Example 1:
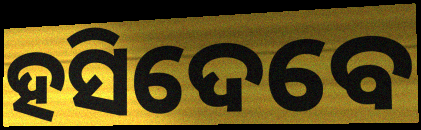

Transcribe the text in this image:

ହସିଦେବେ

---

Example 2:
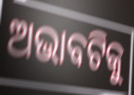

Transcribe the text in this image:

ଅଭାବଟିକୁ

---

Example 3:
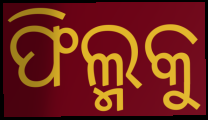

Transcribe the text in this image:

ଫିଲ୍ମକୁ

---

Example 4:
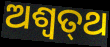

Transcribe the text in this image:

ଅଶ୍ଵତ୍‌ଥ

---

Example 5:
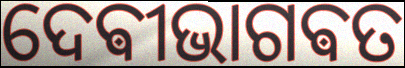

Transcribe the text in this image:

ଦେଵୀଭାଗଵତ